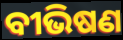
ବୀଭିଷଣ